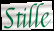
Stille